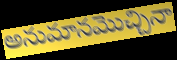
అనుమానమొచ్చినా